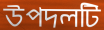
উপদলটি